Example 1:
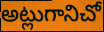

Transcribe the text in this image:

అట్లుగానిచో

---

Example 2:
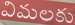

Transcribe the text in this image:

విమలకు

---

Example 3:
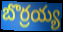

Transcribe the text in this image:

బొర్రయ్య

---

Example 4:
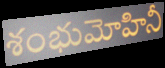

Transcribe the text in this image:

శంభుమోహినీ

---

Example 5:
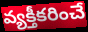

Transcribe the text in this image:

వ్యక్తీకరించే